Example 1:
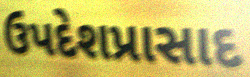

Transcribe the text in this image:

ઉપદેશપ્રાસાદ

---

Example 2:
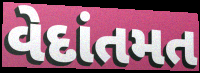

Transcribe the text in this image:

વેદાંતમત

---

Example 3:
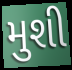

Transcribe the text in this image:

મુશી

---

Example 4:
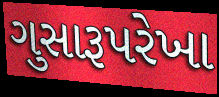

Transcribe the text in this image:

ગુસારૂપરેખા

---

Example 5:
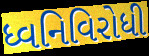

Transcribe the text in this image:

ધ્વનિવિરોધી